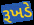
રૂખડે